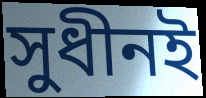
সুধীনই